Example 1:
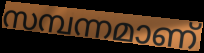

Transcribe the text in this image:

സമ്പന്നമാണ്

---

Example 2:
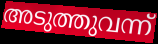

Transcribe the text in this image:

അടുത്തുവന്ന്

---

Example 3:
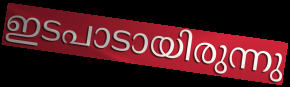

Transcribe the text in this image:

ഇടപാടായിരുന്നു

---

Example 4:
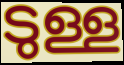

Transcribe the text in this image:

ടുള്ള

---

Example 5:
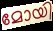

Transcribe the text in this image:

മോയി